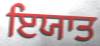
ਇਯਾਤ